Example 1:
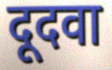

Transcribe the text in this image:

दूदवा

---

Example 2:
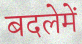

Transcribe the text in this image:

बदलेमें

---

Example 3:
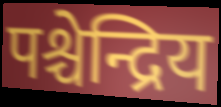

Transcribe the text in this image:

पश्चेन्द्रिय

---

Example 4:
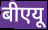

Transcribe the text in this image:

बीएयू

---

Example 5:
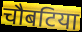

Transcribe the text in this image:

चौबटिया